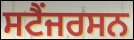
ਸਟੈਂਜਰਸਨ